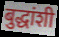
बुद्धांशी